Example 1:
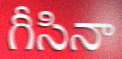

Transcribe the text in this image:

గీసినా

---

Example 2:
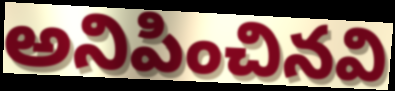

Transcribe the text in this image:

అనిపించినవి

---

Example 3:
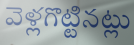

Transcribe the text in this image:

వెళ్లగొట్టినట్లు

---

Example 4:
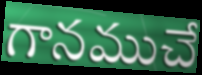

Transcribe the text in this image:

గానముచే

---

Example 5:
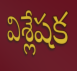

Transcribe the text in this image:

విశ్లేషక